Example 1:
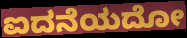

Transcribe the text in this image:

ಐದನೆಯದೋ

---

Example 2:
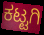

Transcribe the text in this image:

ಕಟ್ಟಗಿ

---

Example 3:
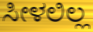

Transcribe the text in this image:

ಸೀಳಲಿಲ್ಲ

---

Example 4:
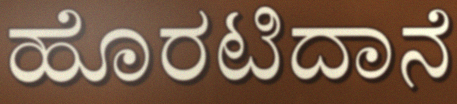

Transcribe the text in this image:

ಹೊರಟಿದಾನೆ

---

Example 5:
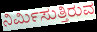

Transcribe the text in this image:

ನಿರ್ಮಿಸುತ್ತಿರುವ